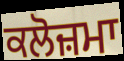
ਕਲੋਜ਼ਮਾ